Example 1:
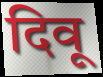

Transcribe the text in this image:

दिवू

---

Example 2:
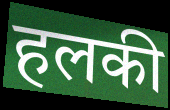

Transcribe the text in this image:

हलकी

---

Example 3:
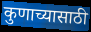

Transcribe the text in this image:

कुणाच्यासाठी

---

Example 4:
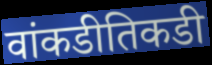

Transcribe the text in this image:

वांकडीतिकडी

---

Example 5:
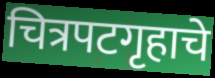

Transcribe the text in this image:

चित्रपटगृहाचे